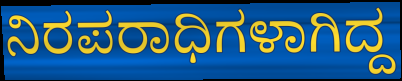
ನಿರಪರಾಧಿಗಳಾಗಿದ್ದ